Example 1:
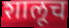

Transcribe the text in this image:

शालूच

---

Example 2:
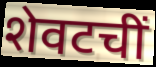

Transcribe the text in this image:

शेवटचीं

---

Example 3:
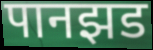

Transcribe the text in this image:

पानझड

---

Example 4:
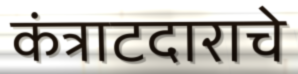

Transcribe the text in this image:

कंत्राटदाराचे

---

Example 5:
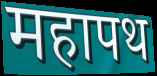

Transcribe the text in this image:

महापथ